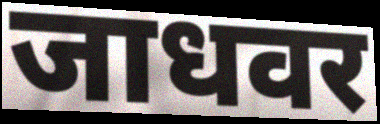
जाधवर